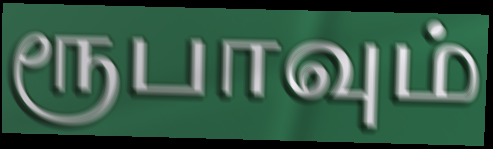
ரூபாவும்